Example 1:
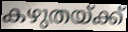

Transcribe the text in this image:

കഴുതയ്ക്ക്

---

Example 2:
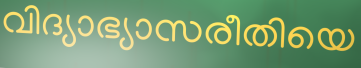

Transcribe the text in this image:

വിദ്യാഭ്യാസരീതിയെ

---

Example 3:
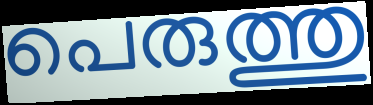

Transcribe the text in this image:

പെരുത്തു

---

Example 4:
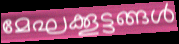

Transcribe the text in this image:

മേഘക്കൂട്ടങ്ങൾ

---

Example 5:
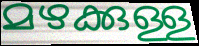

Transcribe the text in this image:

മഴക്കുള്ള